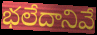
భలేదానివే